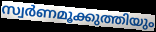
സ്വർണമൂക്കുത്തിയും